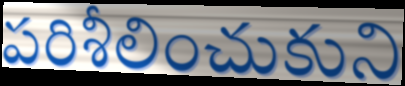
పరిశీలించుకుని